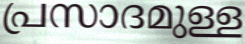
പ്രസാദമുള്ള